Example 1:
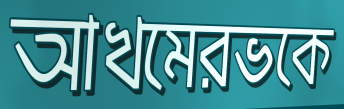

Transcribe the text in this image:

আখমেরভকে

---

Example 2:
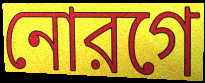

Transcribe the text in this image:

নোরগে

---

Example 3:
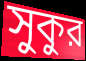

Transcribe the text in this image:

সুকুর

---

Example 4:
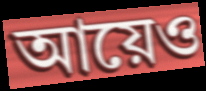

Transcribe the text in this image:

আয়েও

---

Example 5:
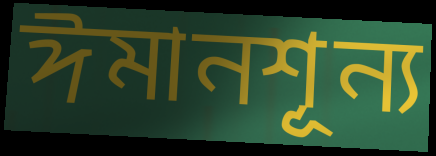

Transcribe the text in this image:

ঈমানশূন্য